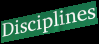
Disciplines